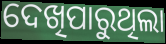
ଦେଖିପାରୁଥିଲା